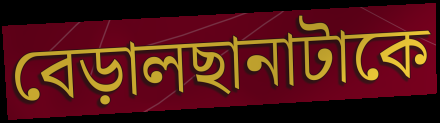
বেড়ালছানাটাকে